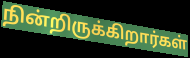
நின்றிருக்கிறார்கள்